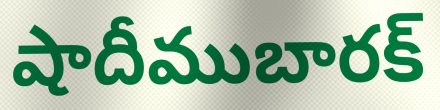
షాదీముబారక్